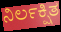
ನಿರ್ಲಕ್ಷಿತ